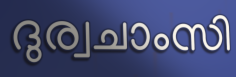
ദുര്വചാംസി